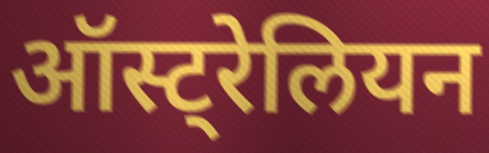
ऑस्ट्रेलियन